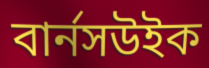
বার্নসউইক